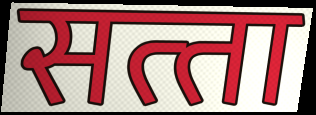
सत्‍ता